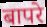
बापरे